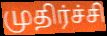
முதிர்ச்சி